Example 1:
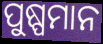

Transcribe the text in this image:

ପୁଷ୍ପମାନ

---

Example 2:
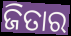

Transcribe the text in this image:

ଜିତାର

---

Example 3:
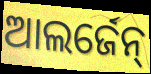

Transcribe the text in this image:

ଆଲର୍ଜେନ୍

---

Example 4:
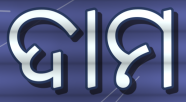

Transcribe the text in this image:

ଦାମ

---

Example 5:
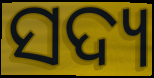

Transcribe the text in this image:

ସଦ୍ୟ